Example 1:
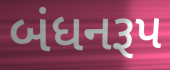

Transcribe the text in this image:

બંધનરૂપ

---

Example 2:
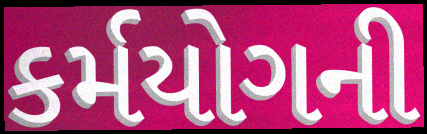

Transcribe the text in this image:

કર્મયોગની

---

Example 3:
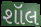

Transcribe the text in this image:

શૉલ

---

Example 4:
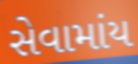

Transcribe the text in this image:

સેવામાંય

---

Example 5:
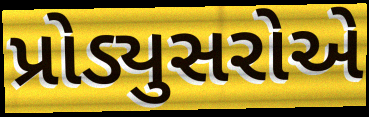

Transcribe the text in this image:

પ્રોડ્યુસરોએ